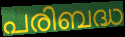
പരിബദ്ധ